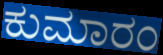
ಕುಮಾರಂ